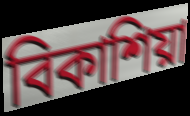
বিকাশিয়া